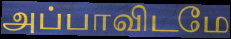
அப்பாவிடமே